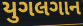
યુગલગાન